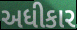
અધીકાર